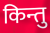
किन्तु